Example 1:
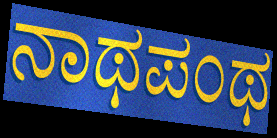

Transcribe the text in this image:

ನಾಥಪಂಥ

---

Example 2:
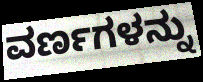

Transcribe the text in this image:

ವರ್ಣಗಳನ್ನು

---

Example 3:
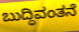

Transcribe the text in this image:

ಬುದ್ಧಿವಂತನೆ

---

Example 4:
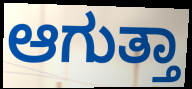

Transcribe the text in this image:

ಆಗುತ್ತಾ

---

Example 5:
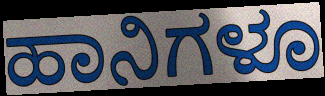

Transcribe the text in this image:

ಹಾನಿಗಳೂ